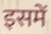
इसमें